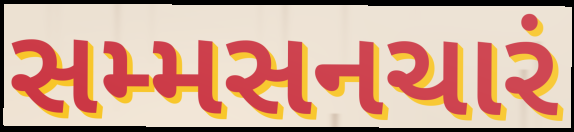
સમ્મસનચારં